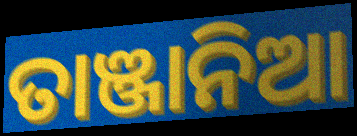
ତାଞ୍ଜାନିଆ